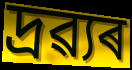
দ্ৰৱ্যৰ